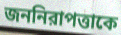
জননিরাপত্তাকে